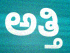
ಅತ್ತಿ